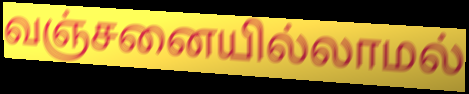
வஞ்சனையில்லாமல்